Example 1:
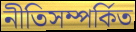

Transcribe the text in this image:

নীতিসম্পর্কিত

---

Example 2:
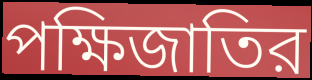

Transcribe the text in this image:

পক্ষিজাতির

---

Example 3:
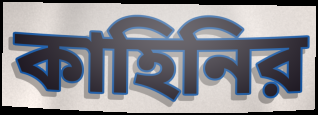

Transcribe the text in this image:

কাহিনির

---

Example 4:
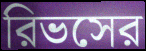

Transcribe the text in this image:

রিভসের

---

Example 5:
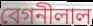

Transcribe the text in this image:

বেগনীলাল